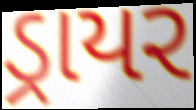
ડ્રાયર